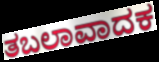
ತಬಲಾವಾದಕ